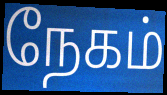
நேகம்